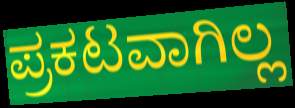
ಪ್ರಕಟವಾಗಿಲ್ಲ